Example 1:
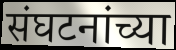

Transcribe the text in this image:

संघटनांच्या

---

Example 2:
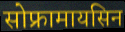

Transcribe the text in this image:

सोफ्रामायसिन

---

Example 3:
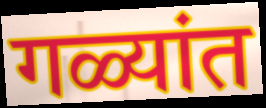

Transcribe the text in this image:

गळ्यांत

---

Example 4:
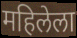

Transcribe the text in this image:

महिलेला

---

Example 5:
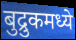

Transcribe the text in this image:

बुद्रुकमध्ये